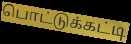
பொட்டுக்கட்டி